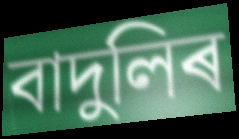
বাদুলিৰ